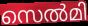
സെൽമി